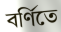
বর্ণিতে